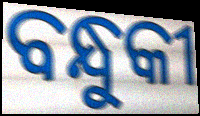
ବନ୍ଧୁକୀ